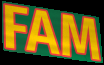
FAM